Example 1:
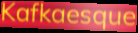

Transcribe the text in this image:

Kafkaesque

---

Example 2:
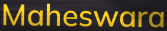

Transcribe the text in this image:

Maheswara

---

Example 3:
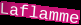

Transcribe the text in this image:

Laflamme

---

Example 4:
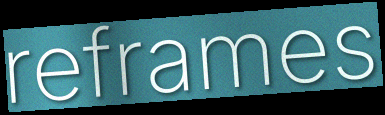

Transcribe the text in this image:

reframes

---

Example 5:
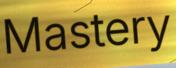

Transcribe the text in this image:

Mastery